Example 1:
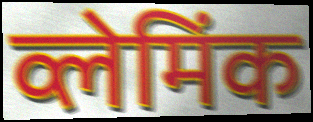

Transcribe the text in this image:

व्लेमिंक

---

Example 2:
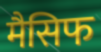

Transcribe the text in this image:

मैसिफ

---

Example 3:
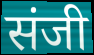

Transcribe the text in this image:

संजी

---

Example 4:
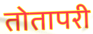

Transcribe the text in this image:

तोतापरी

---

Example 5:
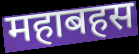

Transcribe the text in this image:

महाबहस